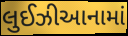
લુઈઝીઆનામાં